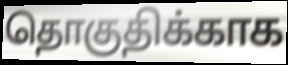
தொகுதிக்காக